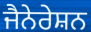
ਜੈਨੇਰੇਸ਼ਨ